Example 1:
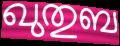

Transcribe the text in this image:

ഖുതുബ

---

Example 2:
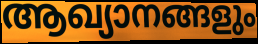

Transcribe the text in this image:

ആഖ്യാനങ്ങളും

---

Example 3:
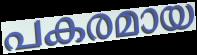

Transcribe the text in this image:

പകരമായ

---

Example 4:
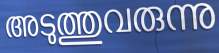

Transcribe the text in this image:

അടുത്തുവരുന്നു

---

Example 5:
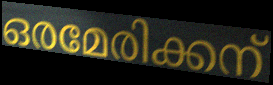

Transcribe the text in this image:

ഒരമേരിക്കന്